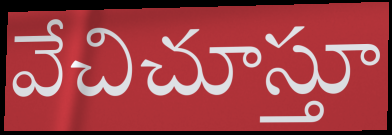
వేచిచూస్తూ